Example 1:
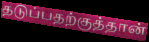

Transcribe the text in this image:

தடுப்பதற்குத்தான்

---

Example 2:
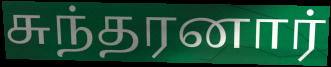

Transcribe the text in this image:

சுந்தரனார்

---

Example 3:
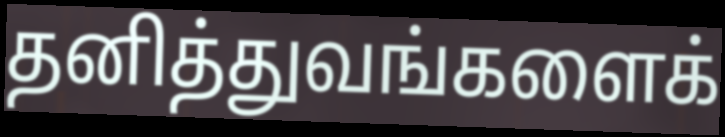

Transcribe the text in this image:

தனித்துவங்களைக்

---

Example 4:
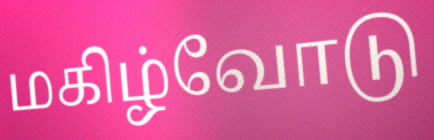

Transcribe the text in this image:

மகிழ்வோடு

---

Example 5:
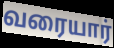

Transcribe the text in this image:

வரையார்